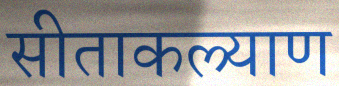
सीताकल्याण